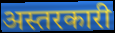
अस्तरकारी